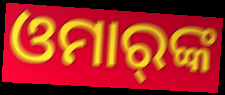
ଓମାର୍‌ଙ୍କ